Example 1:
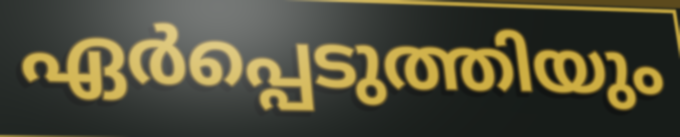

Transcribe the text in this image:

ഏർപ്പെടുത്തിയും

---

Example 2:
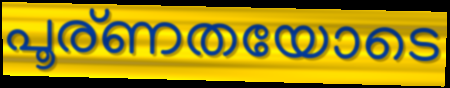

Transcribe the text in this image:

പൂര്ണതയോടെ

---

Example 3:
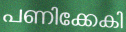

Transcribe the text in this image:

പണിക്കേകി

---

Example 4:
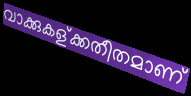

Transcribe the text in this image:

വാക്കുകള്ക്കതീതമാണ്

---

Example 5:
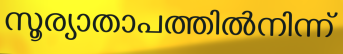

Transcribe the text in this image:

സൂര്യാതാപത്തിൽനിന്ന്